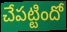
చేపట్టిందో